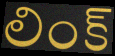
లింక్